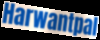
Harwantpal